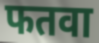
फतवा